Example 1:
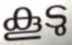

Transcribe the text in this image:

കൂടു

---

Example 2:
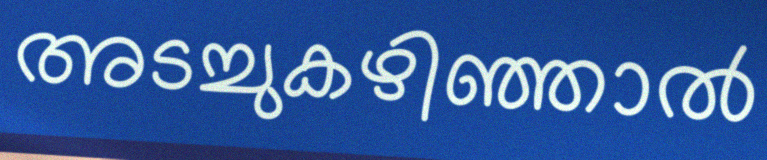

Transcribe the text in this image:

അടച്ചുകഴിഞ്ഞാൽ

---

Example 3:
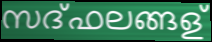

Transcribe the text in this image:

സദ്ഫലങ്ങള്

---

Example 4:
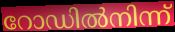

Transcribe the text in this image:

റോഡിൽനിന്ന്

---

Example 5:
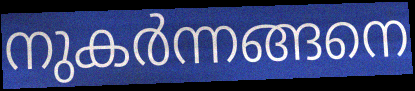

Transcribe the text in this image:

നുകർന്നങ്ങനെ